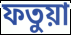
ফতুয়া